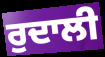
ਰੁਦਾਲੀ